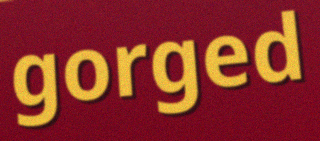
gorged